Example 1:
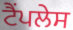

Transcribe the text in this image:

ਟੈਂਪਲੇਸ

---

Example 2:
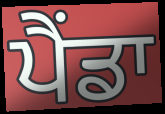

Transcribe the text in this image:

ਪੈਂਡਾ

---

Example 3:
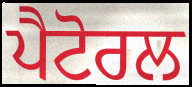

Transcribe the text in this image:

ਪੈਟੋਰਲ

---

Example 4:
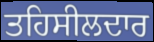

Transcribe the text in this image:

ਤਹਿਸੀਲਦਾਰ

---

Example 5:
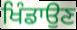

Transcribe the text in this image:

ਖਿੰਡਾਉਣ